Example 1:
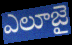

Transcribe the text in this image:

ఎలూజై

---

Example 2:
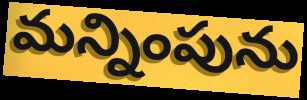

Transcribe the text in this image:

మన్నింపును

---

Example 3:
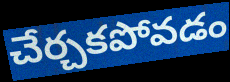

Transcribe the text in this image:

చేర్చకపోవడం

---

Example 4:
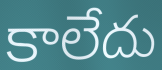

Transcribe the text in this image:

కాలేదు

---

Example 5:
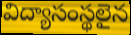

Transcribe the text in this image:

విద్యాసంస్థలైన